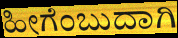
ಹೀಗೆಂಬುದಾಗಿ